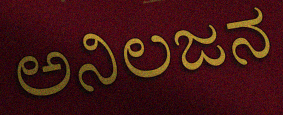
ಅನಿಲಜನ